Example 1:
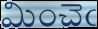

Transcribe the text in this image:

మించెఁ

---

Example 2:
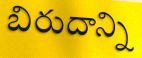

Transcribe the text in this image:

బిరుదాన్ని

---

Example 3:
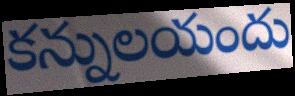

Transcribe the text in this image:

కన్నులయందు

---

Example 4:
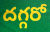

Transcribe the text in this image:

దగ్గరో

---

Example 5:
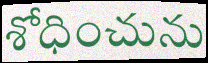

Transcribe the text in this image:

శోధించును